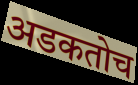
अडकतोच